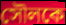
সৌলকে